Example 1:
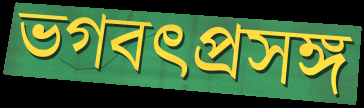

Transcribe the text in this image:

ভগবৎপ্রসঙ্গ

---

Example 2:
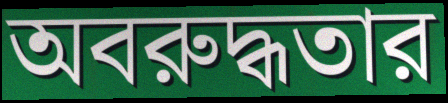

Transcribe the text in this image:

অবরুদ্ধতার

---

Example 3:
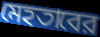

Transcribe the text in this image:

মেহতাবের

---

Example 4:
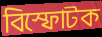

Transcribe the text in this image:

বিস্ফোটক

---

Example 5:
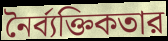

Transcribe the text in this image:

নৈর্ব্যক্তিকতার